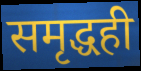
समृद्धही